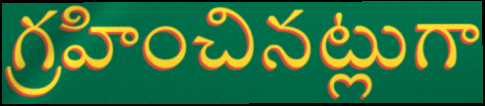
గ్రహించినట్లుగా